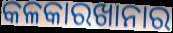
କଳକାରଖାନାର